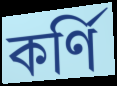
কর্ণি